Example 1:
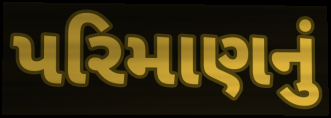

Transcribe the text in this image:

પરિમાણનું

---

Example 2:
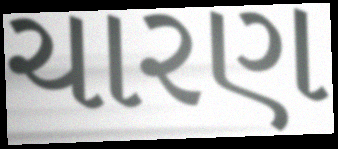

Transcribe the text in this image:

ચારણ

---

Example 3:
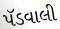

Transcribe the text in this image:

પૅડવાલી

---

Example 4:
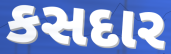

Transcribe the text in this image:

કસદાર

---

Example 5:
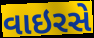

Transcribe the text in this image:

વાઇરસે